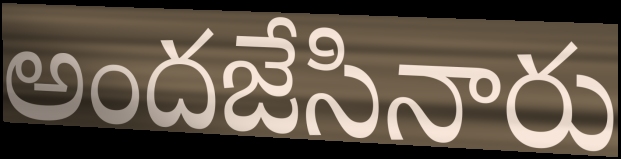
అందజేసినారు